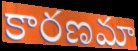
కారణమా